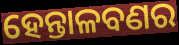
ହେନ୍ତାଳବଣର